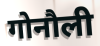
गोनौली